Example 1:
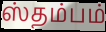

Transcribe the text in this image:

ஸ்தம்பம்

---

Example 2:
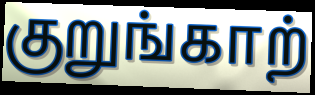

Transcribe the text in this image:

குறுங்காற்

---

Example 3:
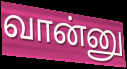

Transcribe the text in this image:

வான்னு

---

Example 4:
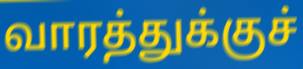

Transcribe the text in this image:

வாரத்துக்குச்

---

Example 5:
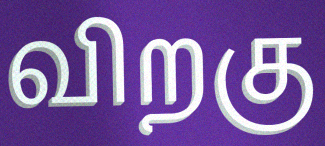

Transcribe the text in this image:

விறகு